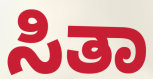
ಸಿತಾ